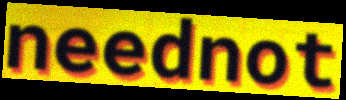
neednot